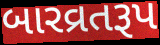
બારવ્રતરૂપ